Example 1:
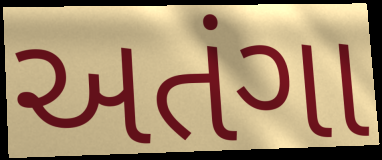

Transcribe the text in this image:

અતંગા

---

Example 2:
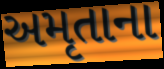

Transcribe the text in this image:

અમૃતાના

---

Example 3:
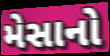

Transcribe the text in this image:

મેસાનો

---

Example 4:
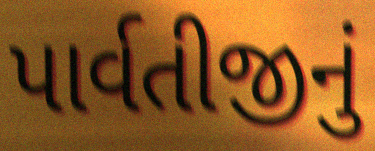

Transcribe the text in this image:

પાર્વતીજીનું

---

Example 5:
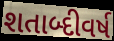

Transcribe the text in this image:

શતાબ્દીવર્ષ